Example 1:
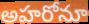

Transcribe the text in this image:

అహరోనూ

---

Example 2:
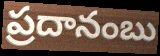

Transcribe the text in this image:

ప్రదానంబు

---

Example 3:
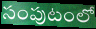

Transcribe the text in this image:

సంపుటంలో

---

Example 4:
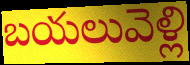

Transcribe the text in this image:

బయలువెళ్లి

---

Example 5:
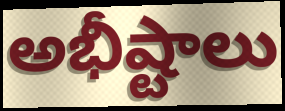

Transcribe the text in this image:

అభీష్టాలు